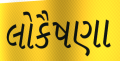
લોકૈષણા